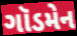
ગૉડમેન